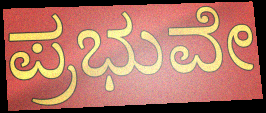
ಪ್ರಭುವೇ